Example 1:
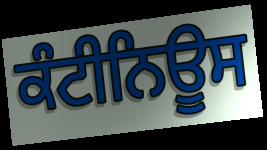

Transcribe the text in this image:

ਕੰਟੀਨਿਊਸ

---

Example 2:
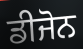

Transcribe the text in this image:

ਡੀਜੋਨ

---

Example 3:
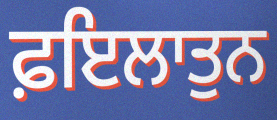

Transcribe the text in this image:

ਫ਼ਇਲਾਤੁਨ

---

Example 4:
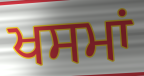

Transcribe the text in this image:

ਖਸਮਾਂ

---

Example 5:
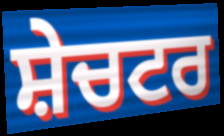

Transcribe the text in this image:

ਸ਼ੇਚਟਰ